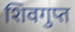
शिवगुप्त